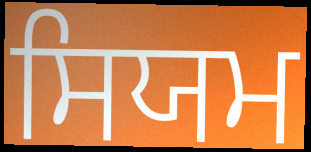
ਸਿਯਮ